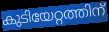
കുടിയേറ്റത്തിന്